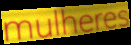
mulheres